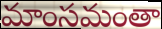
మాంసమంతా